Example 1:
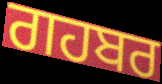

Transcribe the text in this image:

ਗਹਬਰ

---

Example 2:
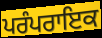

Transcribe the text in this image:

ਪਰੰਪਰਾਇਕ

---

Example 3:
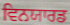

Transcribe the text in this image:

ਵਿਨਯਾਰਡ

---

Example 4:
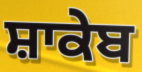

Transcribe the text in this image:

ਸ਼ਾਕੇਬ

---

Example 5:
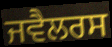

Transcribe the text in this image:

ਜਵੈਲਰਸ